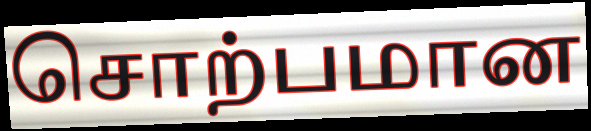
சொற்பமான